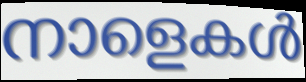
നാളെകൾ